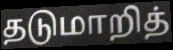
தடுமாறித்